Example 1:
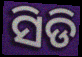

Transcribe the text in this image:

ସିଡି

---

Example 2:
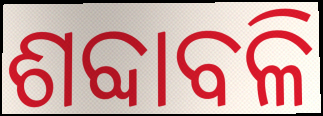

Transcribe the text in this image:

ଶବ୍ଦାବଳି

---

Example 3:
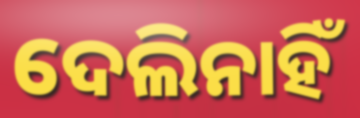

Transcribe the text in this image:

ଦେଲିନାହିଁ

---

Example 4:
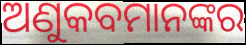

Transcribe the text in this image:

ଅଣୁକବମାନଙ୍କର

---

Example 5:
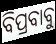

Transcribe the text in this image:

ବିପ୍ରବାବୁ